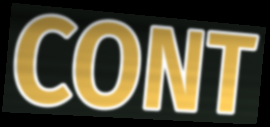
CONT